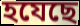
হযেছে